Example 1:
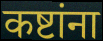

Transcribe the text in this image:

कष्टांना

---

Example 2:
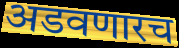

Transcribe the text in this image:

अडवणारच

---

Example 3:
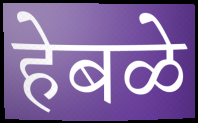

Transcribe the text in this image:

हेबळे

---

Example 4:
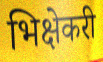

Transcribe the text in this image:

भिक्षेकरी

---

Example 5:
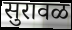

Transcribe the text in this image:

सुरावळ